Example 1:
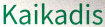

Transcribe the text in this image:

Kaikadis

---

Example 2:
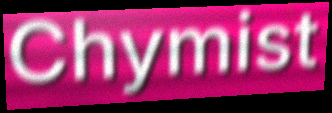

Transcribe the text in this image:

Chymist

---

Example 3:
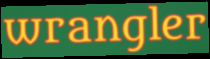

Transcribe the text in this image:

wrangler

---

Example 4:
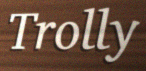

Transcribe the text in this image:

Trolly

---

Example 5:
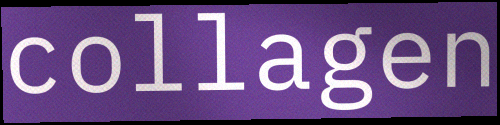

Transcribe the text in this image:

collagen